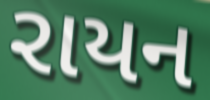
રાયન